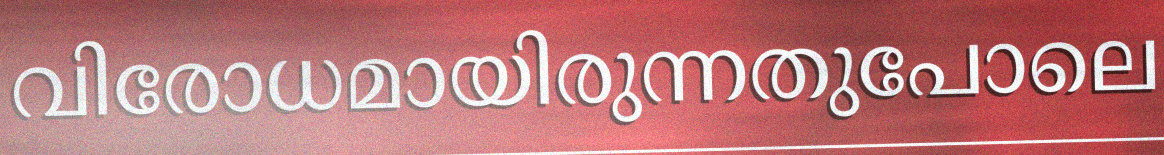
വിരോധമായിരുന്നതുപോലെ